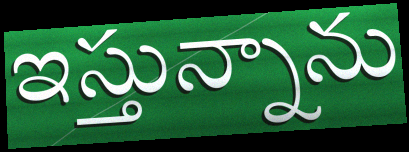
ఇస్తున్నాను